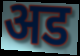
अड